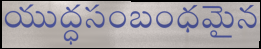
యుద్ధసంబంధమైన